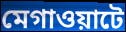
মেগাওয়াটে